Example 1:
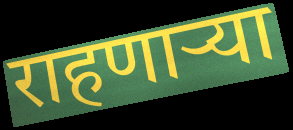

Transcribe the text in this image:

राहणार्‍या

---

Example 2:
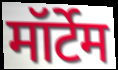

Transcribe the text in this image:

मॉर्टेम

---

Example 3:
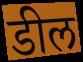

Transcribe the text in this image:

डील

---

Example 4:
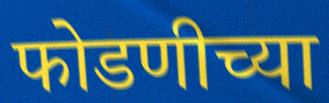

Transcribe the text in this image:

फोडणीच्या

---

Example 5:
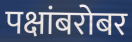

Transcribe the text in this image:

पक्षांबरोबर